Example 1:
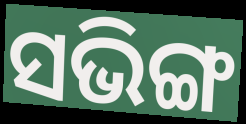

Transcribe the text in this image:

ସଭିଙ୍ଗ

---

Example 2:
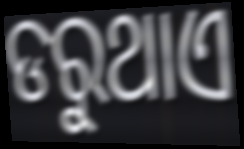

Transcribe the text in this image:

ଡରୁଥାଏ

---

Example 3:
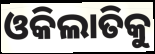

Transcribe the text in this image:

ଓକିଲାତିକୁ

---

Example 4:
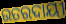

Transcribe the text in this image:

ଉତରଦାୟୀ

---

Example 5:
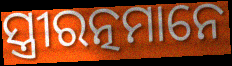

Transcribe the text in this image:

ସ୍ତ୍ରୀରତ୍ନମାନେ